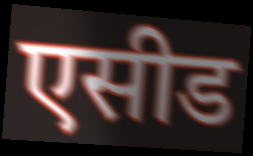
एसीड